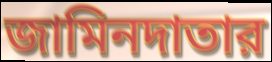
জামিনদাতার